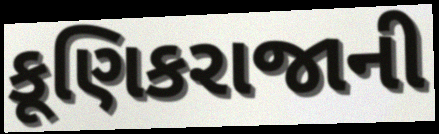
કૂણિકરાજાની